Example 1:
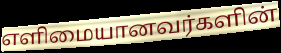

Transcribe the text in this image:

எளிமையானவர்களின்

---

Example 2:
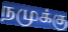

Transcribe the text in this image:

நமுக்கு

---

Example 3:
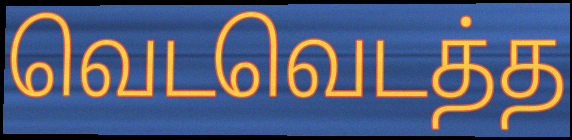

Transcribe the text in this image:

வெடவெடத்த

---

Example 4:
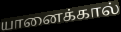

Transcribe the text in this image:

யானைக்கால்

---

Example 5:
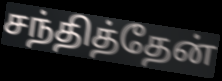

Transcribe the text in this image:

சந்தித்தேன்